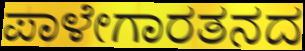
ಪಾಳೇಗಾರತನದ